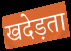
खदेड़ता